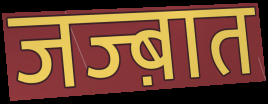
जज्ब़ात